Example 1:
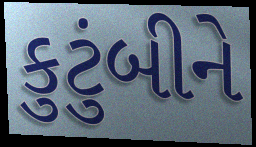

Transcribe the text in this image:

કુટુંબીને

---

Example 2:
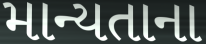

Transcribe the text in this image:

માન્યતાના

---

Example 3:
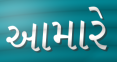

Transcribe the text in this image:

આમારે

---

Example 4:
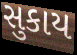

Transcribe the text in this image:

સુકાય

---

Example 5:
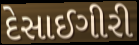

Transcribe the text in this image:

દેસાઈગીરી